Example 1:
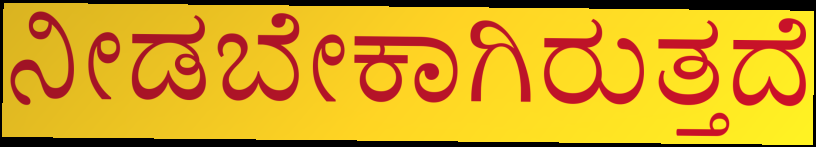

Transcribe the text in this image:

ನೀಡಬೇಕಾಗಿರುತ್ತದೆ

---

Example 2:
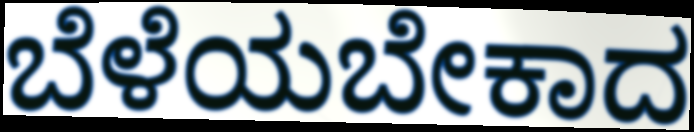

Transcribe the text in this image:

ಬೆಳೆಯಬೇಕಾದ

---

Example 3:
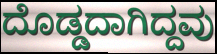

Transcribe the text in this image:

ದೊಡ್ಡದಾಗಿದ್ದವು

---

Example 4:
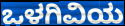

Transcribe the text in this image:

ಒಳಗಿವಿಯ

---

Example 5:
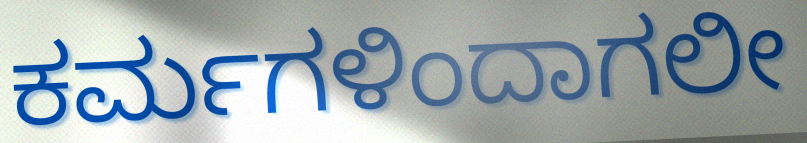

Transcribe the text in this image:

ಕರ್ಮಗಳಿಂದಾಗಲೀ